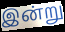
இன்று